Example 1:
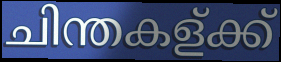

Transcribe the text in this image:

ചിന്തകള്ക്ക്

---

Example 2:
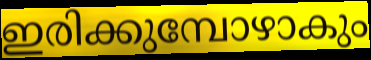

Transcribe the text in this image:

ഇരിക്കുമ്പോഴാകും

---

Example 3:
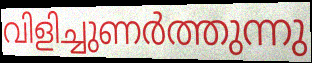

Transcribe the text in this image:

വിളിച്ചുണർത്തുന്നു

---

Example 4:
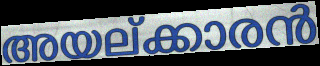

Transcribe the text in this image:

അയല്ക്കാരൻ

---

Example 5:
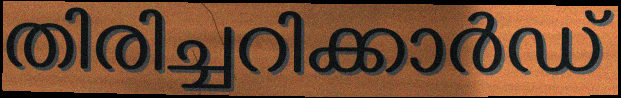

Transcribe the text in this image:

തിരിച്ചറിക്കാർഡ്